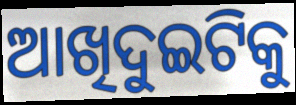
ଆଖିଦୁଇଟିକୁ